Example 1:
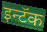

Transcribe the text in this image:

इन्टॅक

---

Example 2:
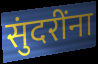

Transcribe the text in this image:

सुंदरींना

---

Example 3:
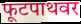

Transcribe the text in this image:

फूटपाथवर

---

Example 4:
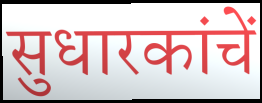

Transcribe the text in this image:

सुधारकांचें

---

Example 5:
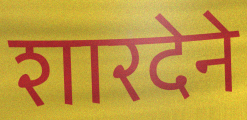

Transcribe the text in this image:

शारदेने